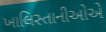
ખાલિસ્તાનીઓએ